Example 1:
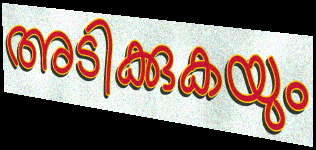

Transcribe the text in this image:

അടിക്കുകയും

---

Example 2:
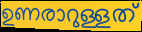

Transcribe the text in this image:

ഉണരാറുള്ളത്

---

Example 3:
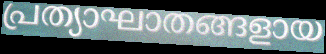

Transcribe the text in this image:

പ്രത്യാഘാതങ്ങളായ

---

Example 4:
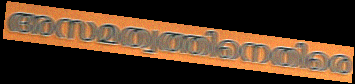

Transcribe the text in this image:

അസമത്വത്തിനെതിരെ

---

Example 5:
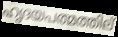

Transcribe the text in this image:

ഹൃദയപത്മത്തില്